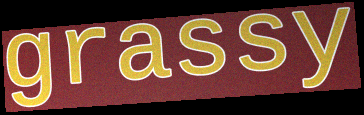
grassy